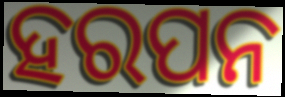
ହରପନ